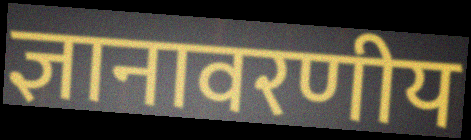
ज्ञानावरणीय